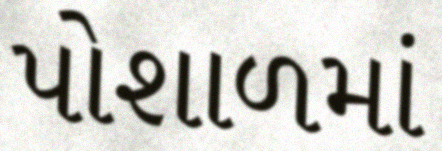
પોશાળમાં